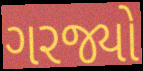
ગરજ્યો